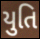
યુતિ